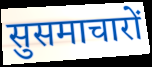
सुसमाचारों